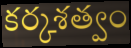
కర్కశత్వం